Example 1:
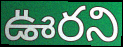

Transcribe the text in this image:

ఊరని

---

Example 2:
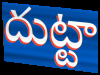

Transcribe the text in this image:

దుట్టా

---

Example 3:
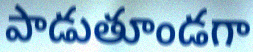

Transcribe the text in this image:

పాడుతూండగా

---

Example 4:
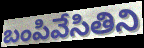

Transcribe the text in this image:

బంపివేసితిని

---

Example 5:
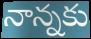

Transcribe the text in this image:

నాన్నకు